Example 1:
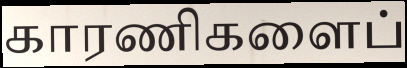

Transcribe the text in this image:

காரணிகளைப்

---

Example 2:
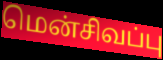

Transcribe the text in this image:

மென்சிவப்பு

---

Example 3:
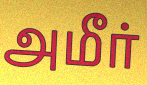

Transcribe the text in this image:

அமீர்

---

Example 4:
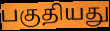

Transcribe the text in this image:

பகுதியது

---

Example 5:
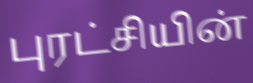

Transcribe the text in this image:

புரட்சியின்